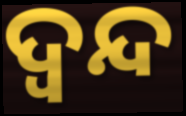
ଦ୍ଵନ୍ଦ